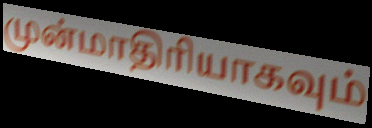
முன்மாதிரியாகவும்